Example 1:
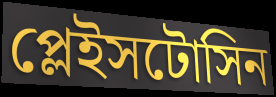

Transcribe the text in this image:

প্লেইসটোসিন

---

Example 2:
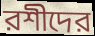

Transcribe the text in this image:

রশীদের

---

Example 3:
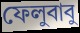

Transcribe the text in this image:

ফেলুবাবু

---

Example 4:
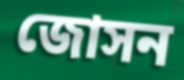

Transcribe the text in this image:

জোসন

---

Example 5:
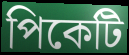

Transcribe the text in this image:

পিকেটি